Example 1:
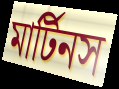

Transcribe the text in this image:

মার্টিনস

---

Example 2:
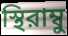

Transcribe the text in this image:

স্থিরাম্বু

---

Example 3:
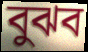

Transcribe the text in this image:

বুঝব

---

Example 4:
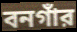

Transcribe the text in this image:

বনগাঁর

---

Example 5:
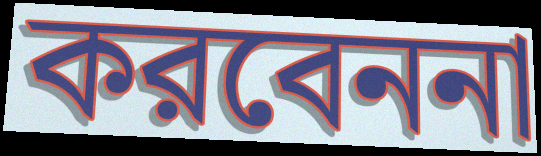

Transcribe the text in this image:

করবেননা